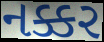
નક્કર